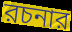
রচনার